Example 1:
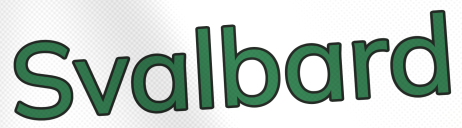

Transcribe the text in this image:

Svalbard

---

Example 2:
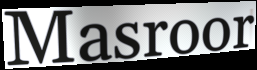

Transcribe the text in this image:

Masroor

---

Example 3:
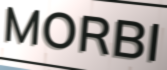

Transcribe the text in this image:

MORBI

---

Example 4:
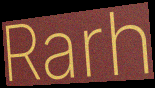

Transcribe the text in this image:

Rarh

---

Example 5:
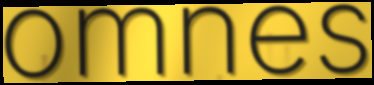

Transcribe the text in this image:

omnes